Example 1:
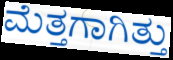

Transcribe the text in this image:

ಮೆತ್ತಗಾಗಿತ್ತು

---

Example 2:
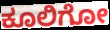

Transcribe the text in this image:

ಕೂಲಿಗೋ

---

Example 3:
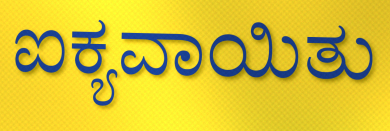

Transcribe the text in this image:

ಐಕ್ಯವಾಯಿತು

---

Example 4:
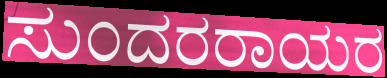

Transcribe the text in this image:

ಸುಂದರರಾಯರ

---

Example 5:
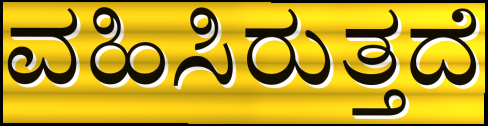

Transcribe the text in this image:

ವಹಿಸಿರುತ್ತದೆ